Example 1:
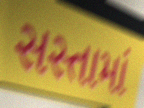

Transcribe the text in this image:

સસ્તામાં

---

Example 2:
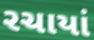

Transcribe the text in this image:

રચાયાં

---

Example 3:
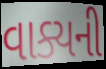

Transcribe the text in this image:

વાક્યની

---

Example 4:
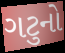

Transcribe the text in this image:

ગટુનો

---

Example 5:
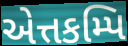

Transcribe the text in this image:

એત્તકમ્પિ